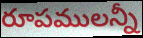
రూపములన్నీ